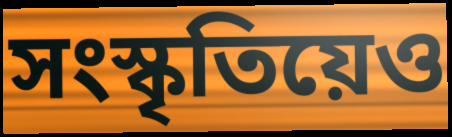
সংস্কৃতিয়েও